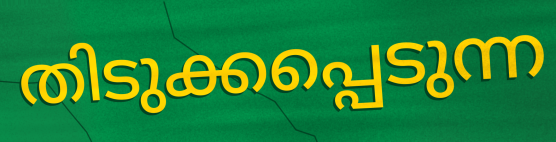
തിടുക്കപ്പെടുന്ന